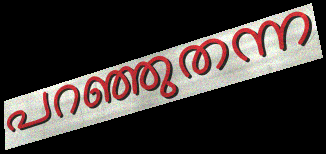
പറഞ്ഞുതന്ന